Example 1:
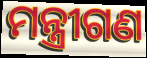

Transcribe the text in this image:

ମନ୍ତ୍ରୀଗଣ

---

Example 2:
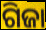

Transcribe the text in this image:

ଗିଜା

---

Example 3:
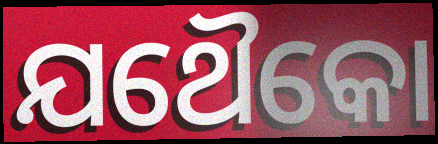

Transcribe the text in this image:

ଯଥୈକୋ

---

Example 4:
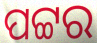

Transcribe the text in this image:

ପଟ୍ଟର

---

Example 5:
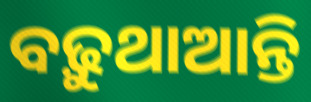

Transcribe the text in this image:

ବଢ଼ୁଥାଆନ୍ତି